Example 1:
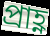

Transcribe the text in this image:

প্ৰাহ্ণ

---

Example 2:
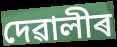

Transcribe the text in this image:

দেৱালীৰ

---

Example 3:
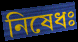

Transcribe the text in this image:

নিষেধঃ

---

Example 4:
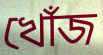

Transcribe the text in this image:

খোঁজ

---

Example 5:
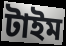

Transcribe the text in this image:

টাইম